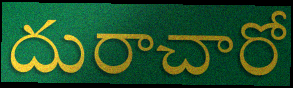
దురాచారో